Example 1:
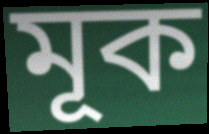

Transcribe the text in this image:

মূক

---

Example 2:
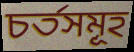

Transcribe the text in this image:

চৰ্তসমূহ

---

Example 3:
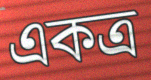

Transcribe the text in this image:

একত্ৰ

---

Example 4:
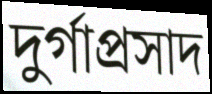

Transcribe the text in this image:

দুৰ্গাপ্ৰসাদ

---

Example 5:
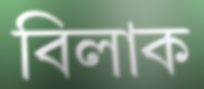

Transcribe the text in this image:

বিলাক